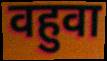
वहुवा